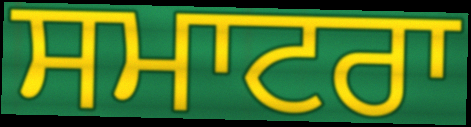
ਸਮਾਟਰਾ